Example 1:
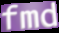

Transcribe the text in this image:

fmd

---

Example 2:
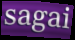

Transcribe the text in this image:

sagai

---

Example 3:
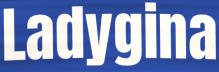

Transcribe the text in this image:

Ladygina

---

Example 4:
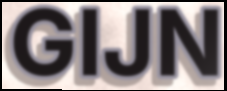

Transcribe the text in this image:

GIJN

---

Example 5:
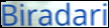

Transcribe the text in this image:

Biradari